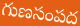
గుణసంపద